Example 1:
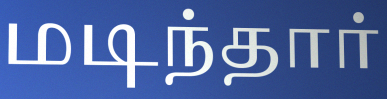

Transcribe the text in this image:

மடிந்தார்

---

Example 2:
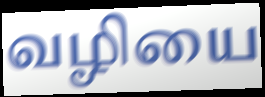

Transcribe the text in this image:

வழியை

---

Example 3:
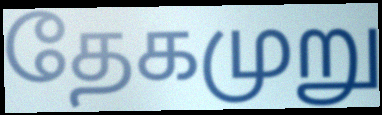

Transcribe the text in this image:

தேகமுறு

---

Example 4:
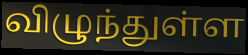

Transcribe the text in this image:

விழுந்துள்ள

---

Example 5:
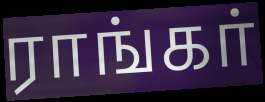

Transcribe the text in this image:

ராங்கர்